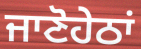
ਜਾਣੋਹੇਠਾਂ